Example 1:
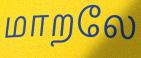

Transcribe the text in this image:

மாறலே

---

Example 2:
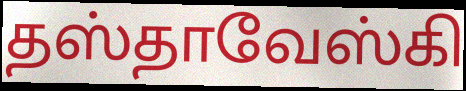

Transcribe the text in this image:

தஸ்தாவேஸ்கி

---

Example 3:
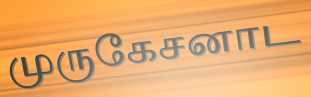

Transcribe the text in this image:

முருகேசனாட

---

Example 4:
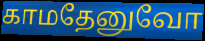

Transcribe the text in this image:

காமதேனுவோ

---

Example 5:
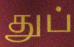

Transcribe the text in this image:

துப்